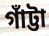
গাঁট্টা